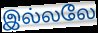
இல்லலே